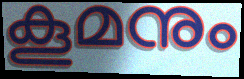
കൂമനും